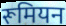
रूमियन